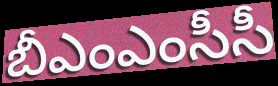
బీఎంఎంసీసీ